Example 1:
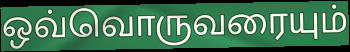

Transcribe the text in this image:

ஒவ்வொருவரையும்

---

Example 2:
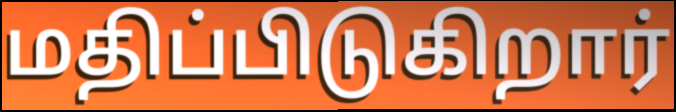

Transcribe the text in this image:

மதிப்பிடுகிறார்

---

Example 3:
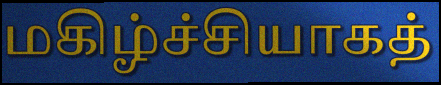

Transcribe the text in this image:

மகிழ்ச்சியாகத்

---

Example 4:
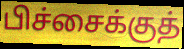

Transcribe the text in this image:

பிச்சைக்குத்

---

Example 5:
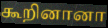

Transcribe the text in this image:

கூறினானா